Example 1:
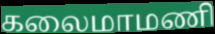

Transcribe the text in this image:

கலைமாமணி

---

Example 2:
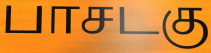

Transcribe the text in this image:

பாசடகு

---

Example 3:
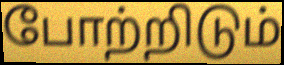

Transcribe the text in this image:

போற்றிடும்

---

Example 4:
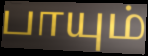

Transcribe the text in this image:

பாயும்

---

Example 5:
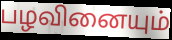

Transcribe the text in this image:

பழவினையும்